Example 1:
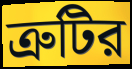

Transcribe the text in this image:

ত্রুটির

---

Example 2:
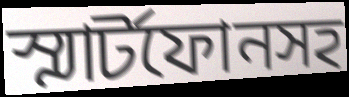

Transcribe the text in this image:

স্মার্টফোনসহ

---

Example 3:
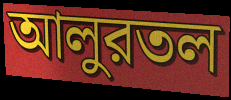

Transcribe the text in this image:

আলুরতল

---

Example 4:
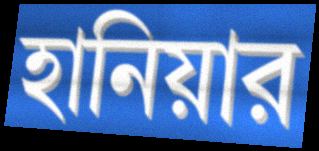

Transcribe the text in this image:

হানিয়ার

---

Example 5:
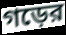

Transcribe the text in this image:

গড়ের